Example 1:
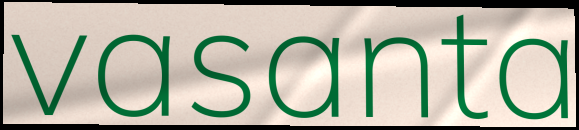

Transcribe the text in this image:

vasanta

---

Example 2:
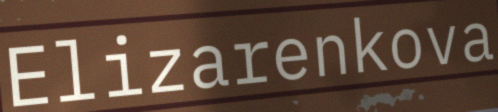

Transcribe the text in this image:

Elizarenkova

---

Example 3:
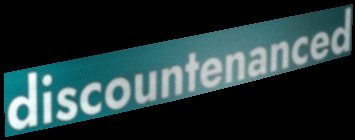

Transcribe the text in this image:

discountenanced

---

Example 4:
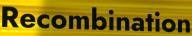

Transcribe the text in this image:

Recombination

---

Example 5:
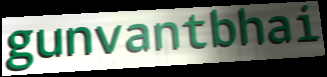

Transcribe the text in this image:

gunvantbhai